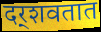
दर्शवतात